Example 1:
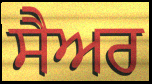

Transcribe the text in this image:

ਸੈਅਰ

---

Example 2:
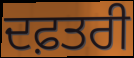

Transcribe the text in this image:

ਦਫ਼ਤਰੀ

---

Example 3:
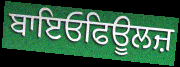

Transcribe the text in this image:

ਬਾਇਓਫਿਊਲਜ਼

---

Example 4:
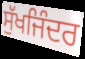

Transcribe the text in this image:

ਸੁੱਖਜਿੰਦਰ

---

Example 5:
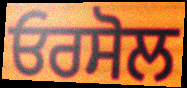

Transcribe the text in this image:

ਓਰਸੋਲ